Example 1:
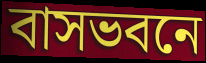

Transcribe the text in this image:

বাসভবনে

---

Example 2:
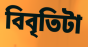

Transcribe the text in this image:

বিবৃতিটা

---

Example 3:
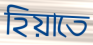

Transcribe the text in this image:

হিয়াতে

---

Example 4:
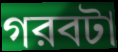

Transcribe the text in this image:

গরবটা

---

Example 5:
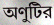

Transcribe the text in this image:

অণুটির